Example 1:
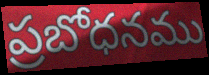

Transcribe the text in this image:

ప్రబోధనము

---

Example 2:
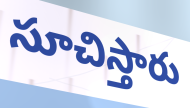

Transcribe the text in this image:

సూచిస్తారు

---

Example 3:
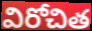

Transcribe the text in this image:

విరోచిత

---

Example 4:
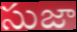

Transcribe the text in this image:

సుజా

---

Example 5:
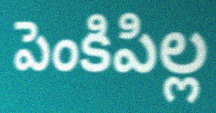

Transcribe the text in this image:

పెంకిపిల్ల